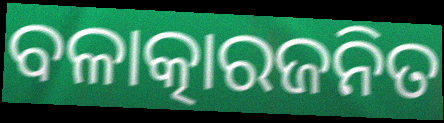
ବଳାତ୍କାରଜନିତ